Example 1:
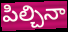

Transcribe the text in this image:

పిల్చినా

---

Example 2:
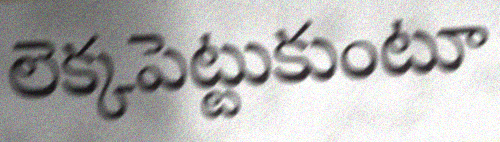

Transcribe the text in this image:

లెక్కపెట్టుకుంటూ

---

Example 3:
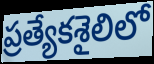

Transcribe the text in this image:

ప్రత్యేకశైలిలో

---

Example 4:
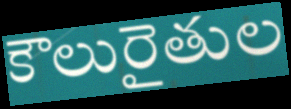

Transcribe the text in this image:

కౌలురైతుల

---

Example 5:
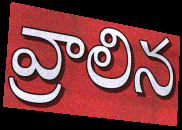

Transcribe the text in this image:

వ్రాలిన